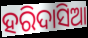
ହରିଦାସିଆ